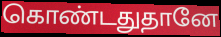
கொண்டதுதானே